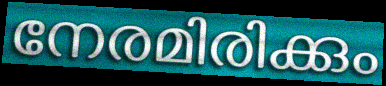
നേരമിരിക്കും